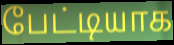
பேட்டியாக